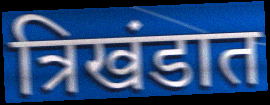
त्रिखंडात